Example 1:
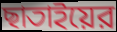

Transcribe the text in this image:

ছাতাইয়ের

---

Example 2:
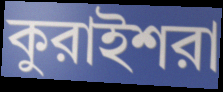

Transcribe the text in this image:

কুরাইশরা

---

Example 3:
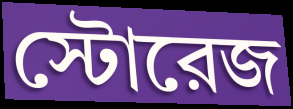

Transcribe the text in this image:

স্টোরেজ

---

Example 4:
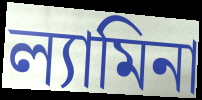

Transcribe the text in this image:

ল্যামিনা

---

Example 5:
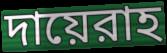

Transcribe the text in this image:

দায়েরাহ